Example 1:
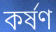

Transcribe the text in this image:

কৰ্ষণ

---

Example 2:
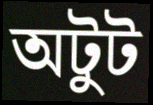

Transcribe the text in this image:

অটুট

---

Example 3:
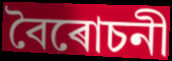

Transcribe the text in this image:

বৈৰোচনী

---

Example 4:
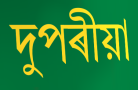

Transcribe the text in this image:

দুপৰীয়া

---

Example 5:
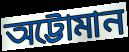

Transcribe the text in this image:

অট্টোমান